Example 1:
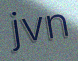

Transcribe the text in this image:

jvn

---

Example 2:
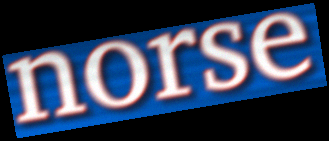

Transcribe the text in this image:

norse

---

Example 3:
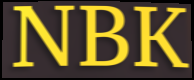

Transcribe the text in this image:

NBK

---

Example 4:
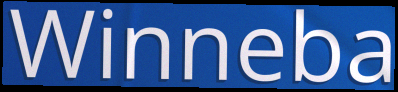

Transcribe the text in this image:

Winneba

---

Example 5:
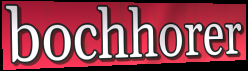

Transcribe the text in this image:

bochhorer